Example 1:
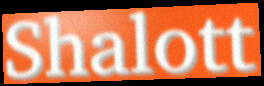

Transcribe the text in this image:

Shalott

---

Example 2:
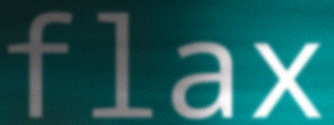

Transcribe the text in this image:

flax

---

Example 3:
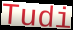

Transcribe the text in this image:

Tudi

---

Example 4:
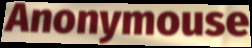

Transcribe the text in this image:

Anonymouse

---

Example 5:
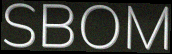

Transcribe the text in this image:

SBOM